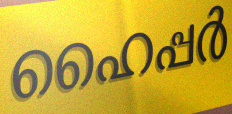
ഹൈപ്പർ